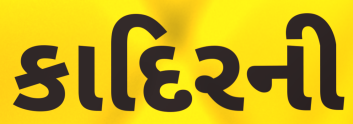
કાદિરની